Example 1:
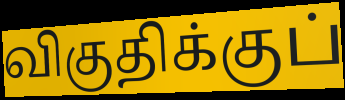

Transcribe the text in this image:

விகுதிக்குப்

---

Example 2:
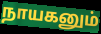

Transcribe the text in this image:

நாயகனும்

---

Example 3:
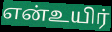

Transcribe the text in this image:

என்உயிர்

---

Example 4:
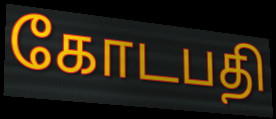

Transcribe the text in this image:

கோடபதி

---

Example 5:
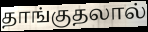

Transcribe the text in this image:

தாங்குதலால்